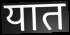
यात